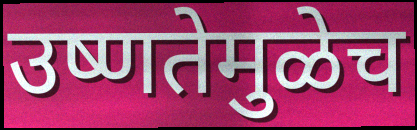
उष्णतेमुळेच